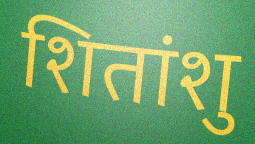
शितांशु